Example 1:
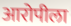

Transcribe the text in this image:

आरोपीला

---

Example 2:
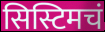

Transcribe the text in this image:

सिस्टिमचं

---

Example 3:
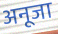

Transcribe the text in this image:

अनूजा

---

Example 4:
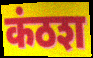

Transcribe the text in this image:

कंठश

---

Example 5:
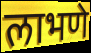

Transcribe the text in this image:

लाभणे